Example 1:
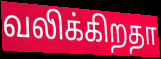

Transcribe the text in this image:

வலிக்கிறதா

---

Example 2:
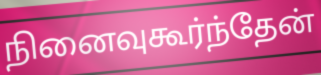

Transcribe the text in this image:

நினைவுகூர்ந்தேன்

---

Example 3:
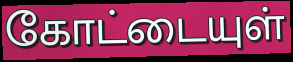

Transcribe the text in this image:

கோட்டையுள்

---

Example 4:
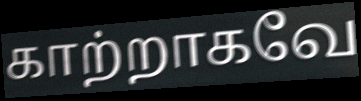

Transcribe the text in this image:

காற்றாகவே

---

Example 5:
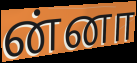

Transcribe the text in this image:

ன்னா